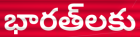
భారత్‌లకు